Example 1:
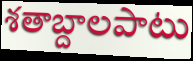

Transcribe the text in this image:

శతాబ్దాలపాటు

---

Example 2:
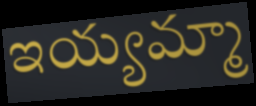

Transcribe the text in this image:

ఇయ్యమ్మా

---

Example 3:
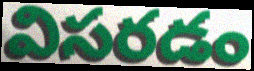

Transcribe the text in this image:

విసరడం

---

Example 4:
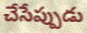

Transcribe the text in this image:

చేసేప్పుడు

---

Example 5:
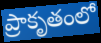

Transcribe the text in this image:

ప్రాకృతంలో